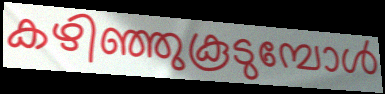
കഴിഞ്ഞുകൂടുമ്പോൾ